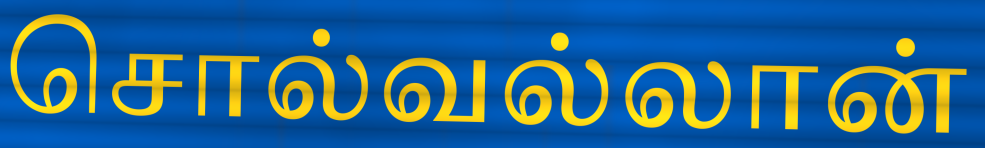
சொல்வல்லான்